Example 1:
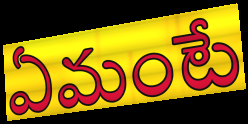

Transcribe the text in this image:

ఏమంటే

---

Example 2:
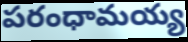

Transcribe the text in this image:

పరంధామయ్య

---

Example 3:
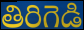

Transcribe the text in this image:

తిరిగెడి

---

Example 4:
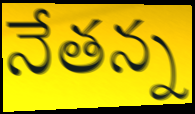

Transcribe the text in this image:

నేతన్న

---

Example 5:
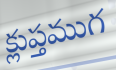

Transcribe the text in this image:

క్లుప్తముగ